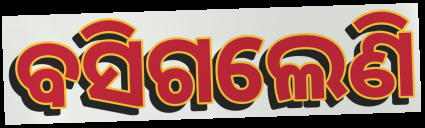
ବସିଗଲେଣି